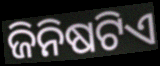
ଜିନିଷଟିଏ